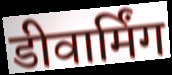
डीवार्मिंग